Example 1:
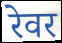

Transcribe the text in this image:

रेवर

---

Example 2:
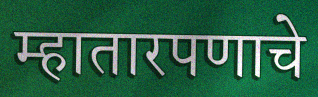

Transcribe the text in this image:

म्हातारपणाचे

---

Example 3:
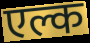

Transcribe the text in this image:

एल्क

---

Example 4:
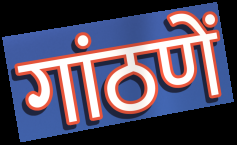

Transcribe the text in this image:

गांठणें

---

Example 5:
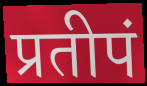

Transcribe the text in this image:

प्रतीपं